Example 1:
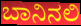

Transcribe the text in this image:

ಬಾನಿನಲಿ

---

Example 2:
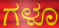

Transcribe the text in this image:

ಗಳೂ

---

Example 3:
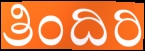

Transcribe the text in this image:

ತಿಂದಿರಿ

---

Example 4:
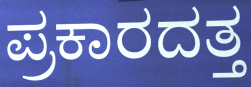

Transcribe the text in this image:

ಪ್ರಕಾರದತ್ತ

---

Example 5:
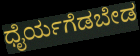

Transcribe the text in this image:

ಧೈರ್ಯಗೆಡಬೇಡ